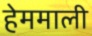
हेममाली